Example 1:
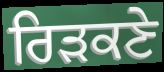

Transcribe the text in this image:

ਰਿੜਕਣੇ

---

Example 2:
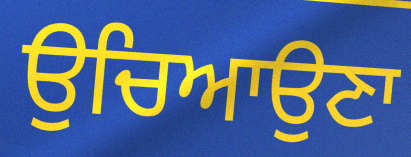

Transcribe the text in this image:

ਉਚਿਆਉਣਾ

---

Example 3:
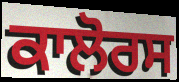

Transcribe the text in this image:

ਕਾਲੋਰਸ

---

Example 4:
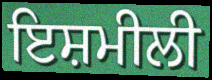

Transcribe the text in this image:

ਇਸ਼ਮੀਲੀ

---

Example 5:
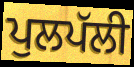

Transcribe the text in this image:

ਪੁਲਪੱਲੀ